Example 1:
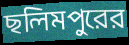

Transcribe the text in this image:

ছলিমপুরের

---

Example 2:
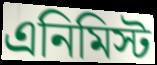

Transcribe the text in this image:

এনিমিস্ট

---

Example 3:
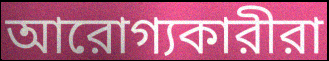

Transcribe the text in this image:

আরোগ্যকারীরা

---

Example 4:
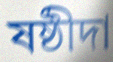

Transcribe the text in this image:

ষষ্ঠীদা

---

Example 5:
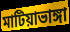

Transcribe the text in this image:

মাটিয়াভাঙ্গা